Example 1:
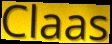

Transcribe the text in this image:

Claas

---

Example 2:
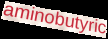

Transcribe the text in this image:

aminobutyric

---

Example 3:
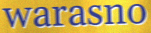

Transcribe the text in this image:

warasno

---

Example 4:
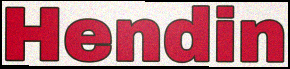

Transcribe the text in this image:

Hendin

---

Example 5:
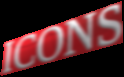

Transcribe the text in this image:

ICONS